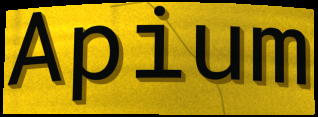
Apium